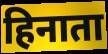
हिनाता